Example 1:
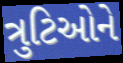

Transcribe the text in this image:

ત્રુટિઓને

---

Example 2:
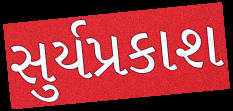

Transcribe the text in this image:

સુર્યપ્રકાશ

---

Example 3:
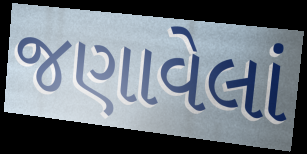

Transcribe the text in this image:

જણાવેલાં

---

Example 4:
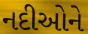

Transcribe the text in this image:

નદીઓને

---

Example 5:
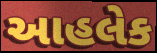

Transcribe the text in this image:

આહલેક